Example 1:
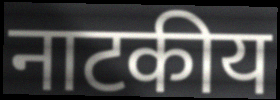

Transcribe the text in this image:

नाटकीय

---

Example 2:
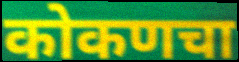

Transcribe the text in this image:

कोकणचा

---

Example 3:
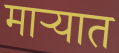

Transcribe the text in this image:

माऱ्यात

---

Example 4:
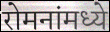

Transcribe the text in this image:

रोमनांमध्ये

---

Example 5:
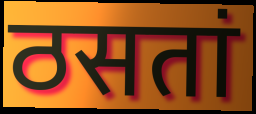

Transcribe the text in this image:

ठसतां